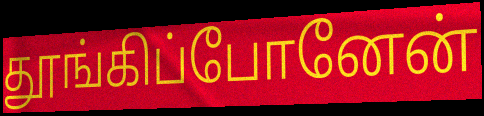
தூங்கிப்போனேன்